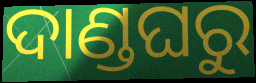
ଦାଣ୍ଡଘରୁ